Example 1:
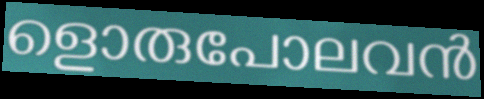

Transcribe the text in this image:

ളൊരുപോലവൻ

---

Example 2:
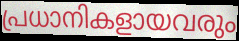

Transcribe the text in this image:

പ്രധാനികളായവരും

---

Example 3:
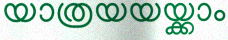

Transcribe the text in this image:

യാത്രയയയ്ക്കാം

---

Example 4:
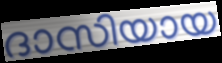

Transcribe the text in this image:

ദാസിയായ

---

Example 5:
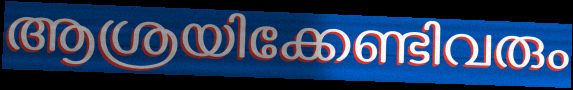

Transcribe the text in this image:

ആശ്രയിക്കേണ്ടിവരും